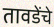
तावडेंचे